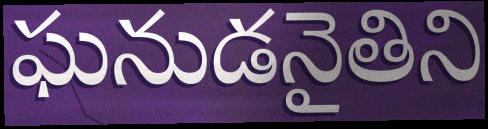
ఘనుడనైతిని